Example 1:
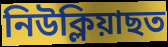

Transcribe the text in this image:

নিউক্লিয়াছত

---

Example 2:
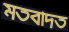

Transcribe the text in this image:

মতবাদত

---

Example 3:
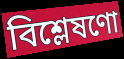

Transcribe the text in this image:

বিশ্লেষণো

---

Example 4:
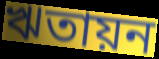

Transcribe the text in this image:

ঋতায়ন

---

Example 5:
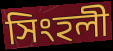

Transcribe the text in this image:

সিংহলী